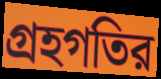
গ্রহগতির